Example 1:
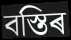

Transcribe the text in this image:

বস্তিৰ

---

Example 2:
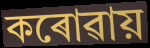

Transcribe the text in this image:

কৰোৱায়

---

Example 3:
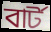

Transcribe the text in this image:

বাৰ্ট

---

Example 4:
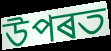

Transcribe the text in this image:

উপৰত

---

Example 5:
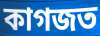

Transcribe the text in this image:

কাগজত